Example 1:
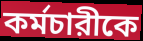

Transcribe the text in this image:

কর্মচারীকে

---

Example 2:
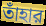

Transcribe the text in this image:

তাঁহার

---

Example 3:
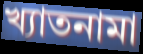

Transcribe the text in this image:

খ্যাতনামা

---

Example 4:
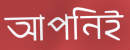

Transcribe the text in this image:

আপনিই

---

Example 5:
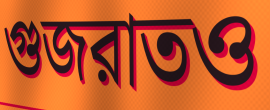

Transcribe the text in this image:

গুজরাতও